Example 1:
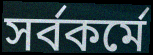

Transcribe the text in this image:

সর্বকর্মে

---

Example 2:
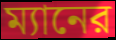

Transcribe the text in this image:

ম্যানের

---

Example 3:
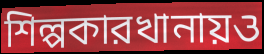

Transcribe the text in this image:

শিল্পকারখানায়ও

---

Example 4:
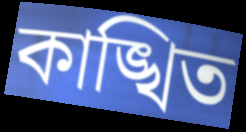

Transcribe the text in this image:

কাঙ্খিত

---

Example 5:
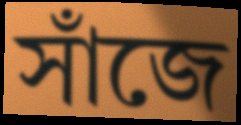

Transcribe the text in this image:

সাঁজে